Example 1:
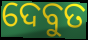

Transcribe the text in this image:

ଦେବୁତ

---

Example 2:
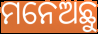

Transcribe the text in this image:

ମନେଅଛୁ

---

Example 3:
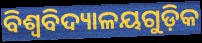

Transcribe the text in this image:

ବିଶ୍ଵବିଦ୍ୟାଳୟଗୁଡ଼ିକ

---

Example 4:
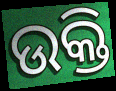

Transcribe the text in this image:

ଉକ୍ତି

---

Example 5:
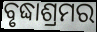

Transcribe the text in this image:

ବୃଦ୍ଧାଶ୍ରମର